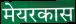
मेयरकास